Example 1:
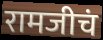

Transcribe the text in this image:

रामजीचं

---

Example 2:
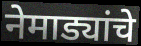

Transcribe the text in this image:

नेमाड्यांचे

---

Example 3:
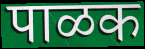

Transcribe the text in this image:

पाळक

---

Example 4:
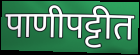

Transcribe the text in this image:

पाणीपट्टीत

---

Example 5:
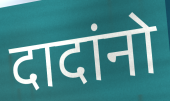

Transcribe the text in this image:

दादांनो